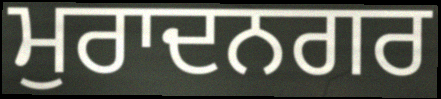
ਮੁਰਾਦਨਗਰ